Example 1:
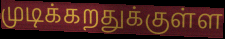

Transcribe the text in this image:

முடிக்கறதுக்குள்ள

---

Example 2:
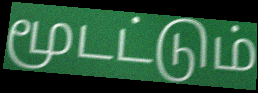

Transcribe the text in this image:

மூடட்டும்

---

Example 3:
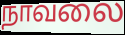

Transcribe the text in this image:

நாவலை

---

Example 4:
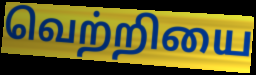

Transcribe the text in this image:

வெற்றியை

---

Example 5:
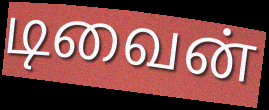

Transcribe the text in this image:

டிவைன்